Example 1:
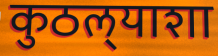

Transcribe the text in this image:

कुठल्याशा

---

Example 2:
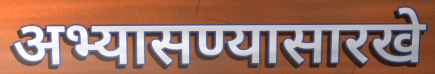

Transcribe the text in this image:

अभ्यासण्यासारखे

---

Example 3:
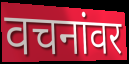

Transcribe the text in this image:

वचनांवर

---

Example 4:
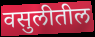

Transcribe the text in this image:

वसुलीतील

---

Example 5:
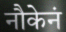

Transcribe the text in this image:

नौकेनं